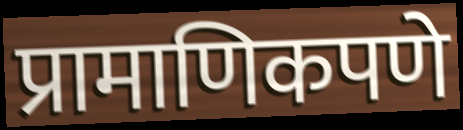
प्रामाणिकपणे